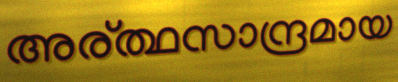
അര്ത്ഥസാന്ദ്രമായ